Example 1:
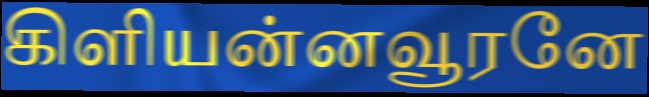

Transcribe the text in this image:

கிளியன்னவூரனே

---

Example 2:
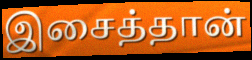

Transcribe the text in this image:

இசைத்தான்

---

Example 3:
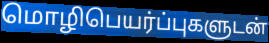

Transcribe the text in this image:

மொழிபெயர்ப்புகளுடன்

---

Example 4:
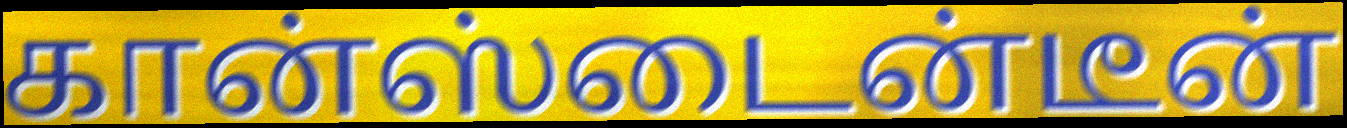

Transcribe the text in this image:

கான்ஸ்டைன்டீன்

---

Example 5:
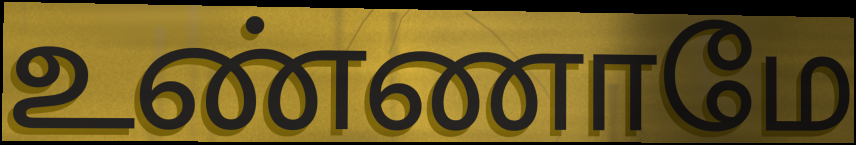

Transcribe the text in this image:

உண்ணாமே